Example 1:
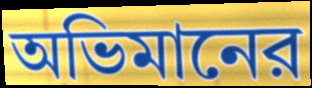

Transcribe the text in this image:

অভিমানের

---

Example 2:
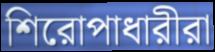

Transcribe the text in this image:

শিরোপাধারীরা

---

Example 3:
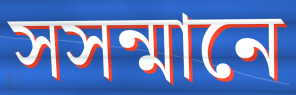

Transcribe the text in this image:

সসন্মানে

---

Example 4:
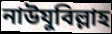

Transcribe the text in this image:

নাউযুবিল্লাহ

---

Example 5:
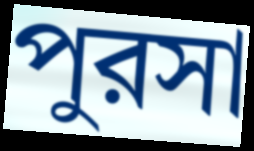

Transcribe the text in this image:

পুরসা